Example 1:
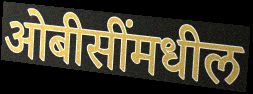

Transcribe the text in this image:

ओबीसींमधील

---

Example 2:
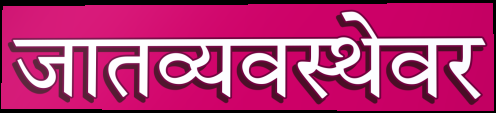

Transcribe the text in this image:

जातव्यवस्थेवर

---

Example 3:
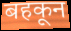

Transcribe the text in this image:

बहकून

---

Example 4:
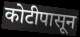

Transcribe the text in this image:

कोटीपासून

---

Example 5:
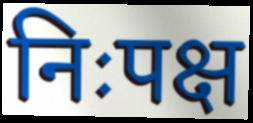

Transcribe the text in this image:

निःपक्ष